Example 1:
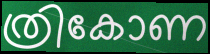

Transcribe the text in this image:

ത്രികോണ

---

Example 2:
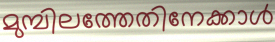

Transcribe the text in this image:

മുമ്പിലത്തേതിനേക്കാൾ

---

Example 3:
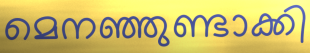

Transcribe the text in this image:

മെനഞ്ഞുണ്ടാക്കി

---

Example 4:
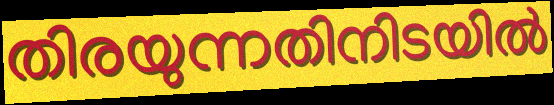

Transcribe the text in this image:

തിരയുന്നതിനിടയിൽ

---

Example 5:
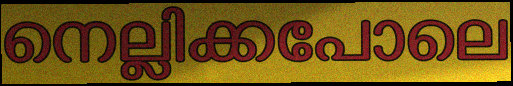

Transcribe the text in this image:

നെല്ലിക്കപോലെ